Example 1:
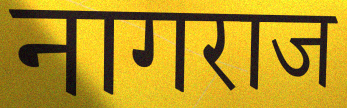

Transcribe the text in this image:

नागराज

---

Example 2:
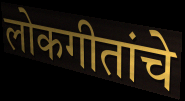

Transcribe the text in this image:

लोकगीतांचे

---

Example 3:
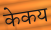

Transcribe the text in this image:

केकय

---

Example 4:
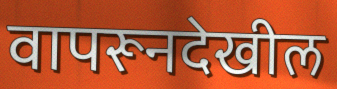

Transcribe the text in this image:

वापरूनदेखील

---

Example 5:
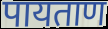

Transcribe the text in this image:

पायताण